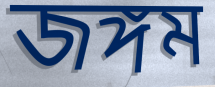
জঙ্গম